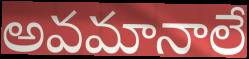
అవమానాలే